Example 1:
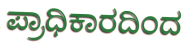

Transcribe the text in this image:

ಪ್ರಾಧಿಕಾರದಿಂದ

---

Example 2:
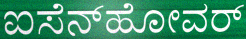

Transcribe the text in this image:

ಐಸೆನ್‍ಹೋವರ್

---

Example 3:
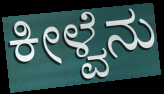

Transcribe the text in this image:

ಕೀಳ್ವೆನು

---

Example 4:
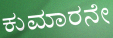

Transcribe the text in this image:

ಕುಮಾರನೇ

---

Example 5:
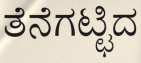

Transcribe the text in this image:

ತೆನೆಗಟ್ಟಿದ